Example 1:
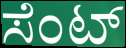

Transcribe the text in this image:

ಸೆಂಟ್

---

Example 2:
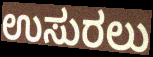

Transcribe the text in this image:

ಉಸುರಲು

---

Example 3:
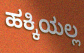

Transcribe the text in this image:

ಹಕ್ಕಿಯಲ್ಲ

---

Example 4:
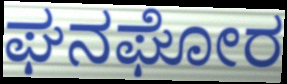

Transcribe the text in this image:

ಘನಘೋರ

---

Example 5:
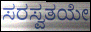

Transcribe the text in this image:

ಸರಸ್ವತಯೇ